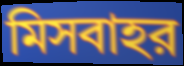
মিসবাহর